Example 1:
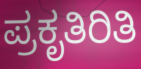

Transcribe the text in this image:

ಪ್ರಕೃತಿರಿತಿ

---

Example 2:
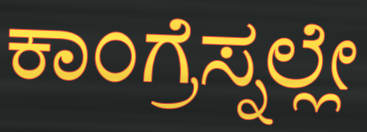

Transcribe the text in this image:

ಕಾಂಗ್ರೆಸ್ನಲ್ಲೇ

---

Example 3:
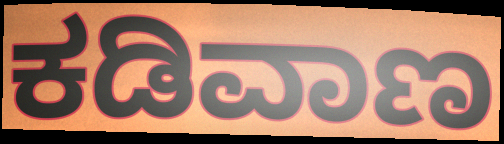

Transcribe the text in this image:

ಕಡಿವಾಣ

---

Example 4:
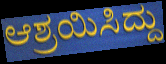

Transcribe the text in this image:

ಆಶ್ರಯಿಸಿದ್ದು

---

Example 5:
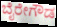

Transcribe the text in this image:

ಬೈರೇಗೌಡ